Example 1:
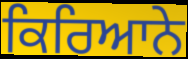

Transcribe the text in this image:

ਕਿਰਿਆਨੇ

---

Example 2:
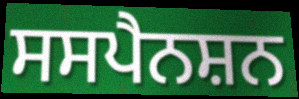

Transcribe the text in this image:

ਸਸਪੈਨਸ਼ਨ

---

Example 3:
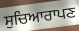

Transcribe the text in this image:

ਸੁਚਿਆਰਾਪਣ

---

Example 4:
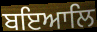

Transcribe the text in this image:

ਬਇਆਲਿ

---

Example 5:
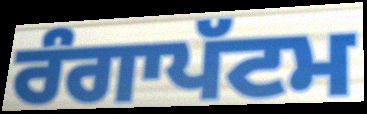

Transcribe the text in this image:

ਰੰਗਾਪੱਟਮ